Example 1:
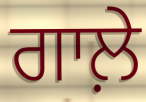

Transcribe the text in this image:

ਗਾਲ਼ੇ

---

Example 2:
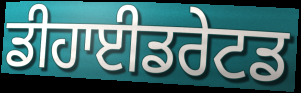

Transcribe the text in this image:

ਡੀਹਾਈਡਰੇਟਡ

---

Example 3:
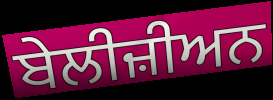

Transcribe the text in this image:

ਬੇਲੀਜ਼ੀਅਨ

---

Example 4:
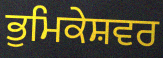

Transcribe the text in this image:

ਭੁਮਿਕੇਸ਼ਵਰ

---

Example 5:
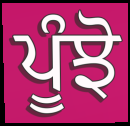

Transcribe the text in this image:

ਪੂੰਝੋ